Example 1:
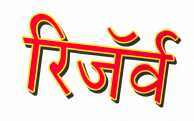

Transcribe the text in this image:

रिजॅर्व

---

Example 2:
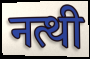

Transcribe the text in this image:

नत्थी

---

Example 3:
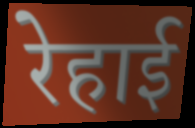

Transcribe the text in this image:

रेहाई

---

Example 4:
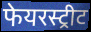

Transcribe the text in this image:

फेयरस्ट्रीट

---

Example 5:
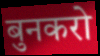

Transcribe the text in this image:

बुनकरो